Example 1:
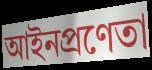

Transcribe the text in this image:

আইনপ্রণেতা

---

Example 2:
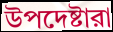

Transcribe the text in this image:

উপদেষ্টারা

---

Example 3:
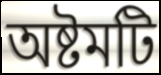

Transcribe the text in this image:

অষ্টমটি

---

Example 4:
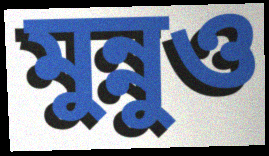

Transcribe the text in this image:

মুন্নুও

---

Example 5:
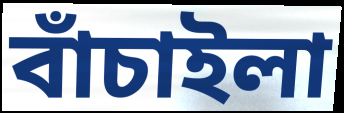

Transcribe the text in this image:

বাঁচাইলা